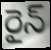
రైన్